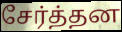
சேர்த்தன